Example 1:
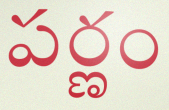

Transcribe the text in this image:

పర్ణం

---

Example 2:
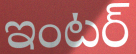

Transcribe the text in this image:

ఇంటర్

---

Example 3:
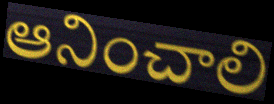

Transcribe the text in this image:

ఆనించాలి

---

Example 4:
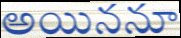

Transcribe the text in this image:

అయిననూ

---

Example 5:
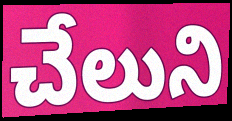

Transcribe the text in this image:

చేలుని